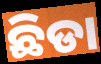
ଛିଡା